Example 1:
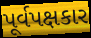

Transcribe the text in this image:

પૂર્વપક્ષકાર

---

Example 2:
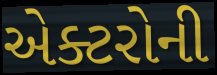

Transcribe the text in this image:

એક્ટરોની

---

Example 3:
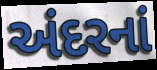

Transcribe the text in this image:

અંદરનાં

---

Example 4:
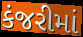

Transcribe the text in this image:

કંજરીમાં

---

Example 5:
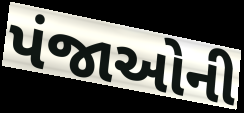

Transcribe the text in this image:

પંજાઓની